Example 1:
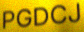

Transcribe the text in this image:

PGDCJ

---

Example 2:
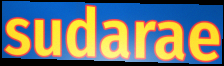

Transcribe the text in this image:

sudarae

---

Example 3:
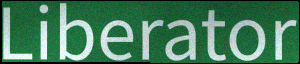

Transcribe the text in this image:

Liberator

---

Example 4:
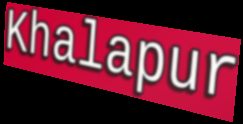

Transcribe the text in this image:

Khalapur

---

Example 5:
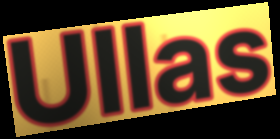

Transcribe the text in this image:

Ullas